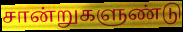
சான்றுகளுண்டு